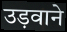
उड़वाने